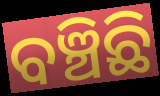
ବଞ୍ଚିଛି